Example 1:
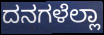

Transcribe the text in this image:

ದನಗಳೆಲ್ಲಾ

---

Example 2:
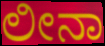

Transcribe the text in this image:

ಲೀನಾ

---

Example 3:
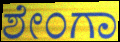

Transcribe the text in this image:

ಶೇಂಗಾ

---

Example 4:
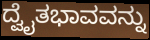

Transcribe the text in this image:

ದ್ವೈತಭಾವವನ್ನು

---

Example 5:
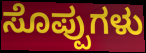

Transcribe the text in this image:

ಸೊಪ್ಪುಗಳು